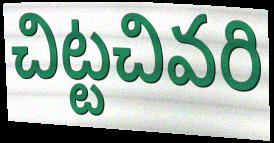
చిట్టచివరి